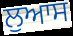
ਲੁਆਸ